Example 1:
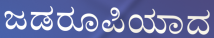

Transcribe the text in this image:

ಜಡರೂಪಿಯಾದ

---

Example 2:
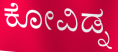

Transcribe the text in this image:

ಕೋವಿಡ್ನ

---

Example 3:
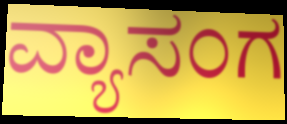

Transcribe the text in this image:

ವ್ಯಾಸಂಗ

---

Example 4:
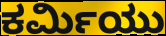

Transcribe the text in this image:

ಕರ್ಮಿಯು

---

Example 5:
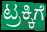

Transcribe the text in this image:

ಟ್ರಕ್ಕಿಗೆ